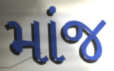
માંજ